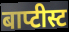
बाप्टीस्ट